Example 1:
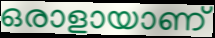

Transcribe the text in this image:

ഒരാളായാണ്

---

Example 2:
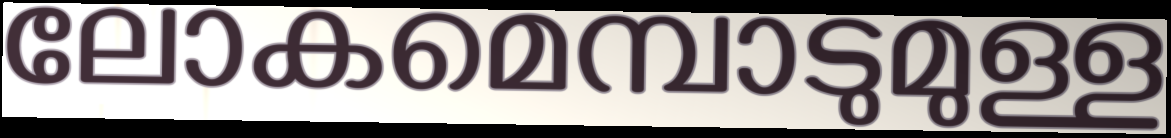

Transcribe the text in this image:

ലോകമെമ്പാടുമുള്ള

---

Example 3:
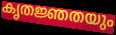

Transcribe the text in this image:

കൃതജ്ഞതയും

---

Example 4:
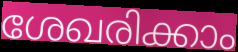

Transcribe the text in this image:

ശേഖരിക്കാം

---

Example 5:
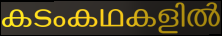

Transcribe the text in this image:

കടംകഥകളിൽ